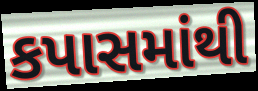
કપાસમાંથી